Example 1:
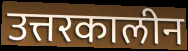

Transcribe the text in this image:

उत्तरकालीन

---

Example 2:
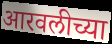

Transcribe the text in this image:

आरवलीच्या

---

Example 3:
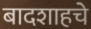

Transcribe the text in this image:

बादशाहचे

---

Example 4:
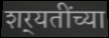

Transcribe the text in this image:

शर्यतींच्या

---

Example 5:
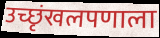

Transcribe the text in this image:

उच्छृंखलपणाला